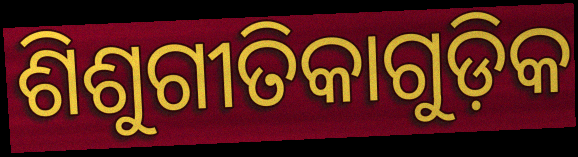
ଶିଶୁଗୀତିକାଗୁଡ଼ିକ